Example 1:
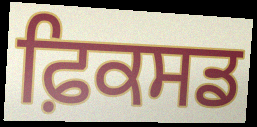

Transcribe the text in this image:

ਫ਼ਿਕਸਡ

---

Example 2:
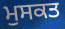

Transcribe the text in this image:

ਮੁਸਕਤ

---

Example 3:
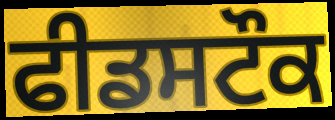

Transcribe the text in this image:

ਫੀਡਸਟੌਕ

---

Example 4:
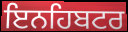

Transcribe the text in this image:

ਇਨਹਿਬਟਰ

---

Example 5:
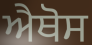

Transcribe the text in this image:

ਐਥੋਸ